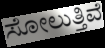
ಸೋಲುತ್ತಿವೆ